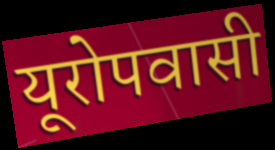
यूरोपवासी